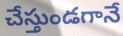
చేస్తుండగానే